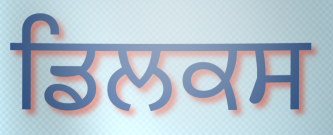
ਡਿਲਕਸ